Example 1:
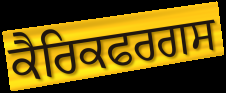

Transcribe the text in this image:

ਕੈਰਿਕਫਰਗਸ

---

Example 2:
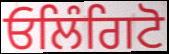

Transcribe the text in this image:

ਓਲਿੰਗਿਟੋ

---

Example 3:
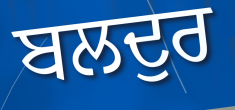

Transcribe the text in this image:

ਬਲਦੁਰ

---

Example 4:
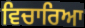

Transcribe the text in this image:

ਵਿਚਾਰਿਆ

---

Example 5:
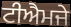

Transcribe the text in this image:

ਟੀਐਮਜੇ